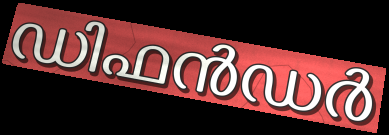
ഡിഫൻഡർ